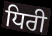
ਧਿਰੀ